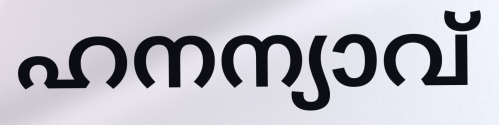
ഹനന്യാവ്